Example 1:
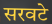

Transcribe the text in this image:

सरवटे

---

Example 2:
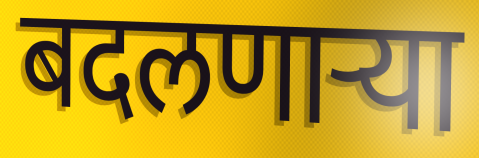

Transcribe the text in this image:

बदलणार्‍या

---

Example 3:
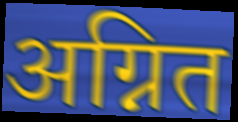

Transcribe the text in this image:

अग्नित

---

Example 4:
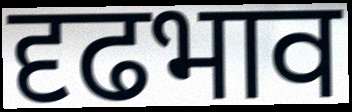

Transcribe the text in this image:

दृढभाव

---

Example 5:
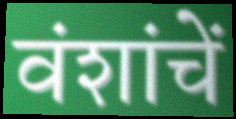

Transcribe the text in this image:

वंशांचें